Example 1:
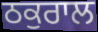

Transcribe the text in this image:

ਠਕੁਰਾਲ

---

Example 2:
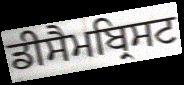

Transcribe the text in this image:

ਡੀਸੈਮਬ੍ਰਿਸਟ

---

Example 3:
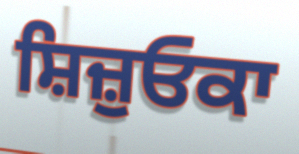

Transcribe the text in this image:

ਸ਼ਿਜ਼ੁਓਕਾ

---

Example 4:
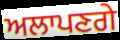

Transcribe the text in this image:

ਅਲਾਪਣਗੇ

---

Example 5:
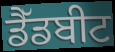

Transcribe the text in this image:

ਡੈੱਡਬੀਟ